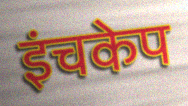
इंचकेप